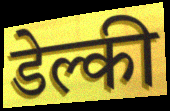
डेल्की